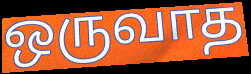
ஒருவாத